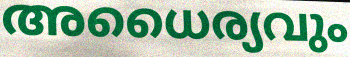
അധൈര്യവും